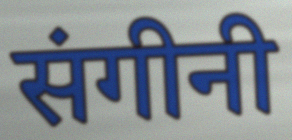
संगीनी